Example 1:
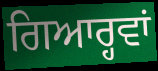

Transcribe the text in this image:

ਗਿਆਰ੍ਹਵਾਂ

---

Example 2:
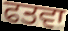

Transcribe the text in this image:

ਫਤਵਾ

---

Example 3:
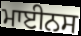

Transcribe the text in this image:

ਮਾਈਨਸ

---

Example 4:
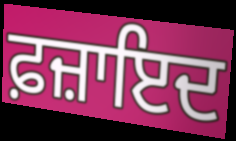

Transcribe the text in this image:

ਫ਼ਜ਼ਾਇਦ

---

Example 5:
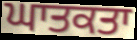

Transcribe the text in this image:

ਘਾਤਕਤਾ